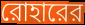
রোহারের